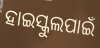
ହାଇସ୍କୁଲପାଇଁ